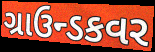
ગ્રાઉન્ડકવર